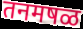
तनमषळ